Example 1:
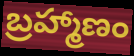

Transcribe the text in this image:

బ్రహ్మాణం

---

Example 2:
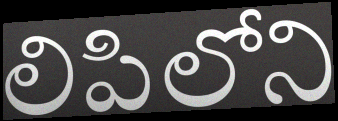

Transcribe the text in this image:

లిపిలోని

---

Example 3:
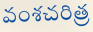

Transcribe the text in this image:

వంశచరిత్ర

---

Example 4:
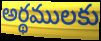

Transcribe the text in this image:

అర్థములకు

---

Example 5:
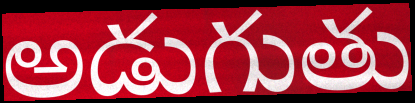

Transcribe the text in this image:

అడుగుతు